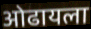
ओढायला